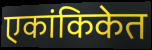
एकांकिकेत